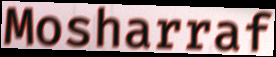
Mosharraf